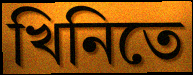
খিনিতে